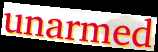
unarmed